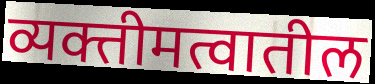
व्यक्तीमत्वातील